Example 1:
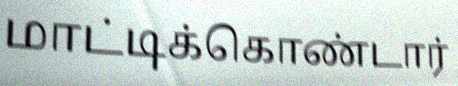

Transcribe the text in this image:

மாட்டிக்கொண்டார்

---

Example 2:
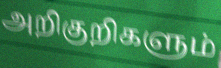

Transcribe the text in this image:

அறிகுறிகளும்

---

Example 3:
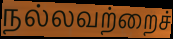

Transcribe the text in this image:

நல்லவற்றைச்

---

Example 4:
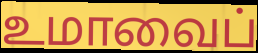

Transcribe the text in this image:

உமாவைப்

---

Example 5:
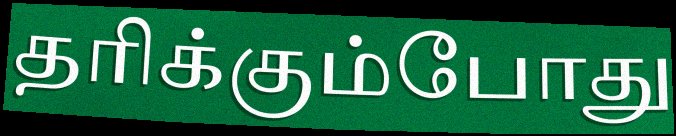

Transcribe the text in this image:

தரிக்கும்போது